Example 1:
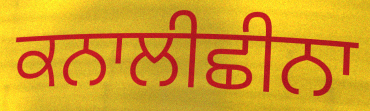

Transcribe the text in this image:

ਕਨਾਲੀਛੀਨਾ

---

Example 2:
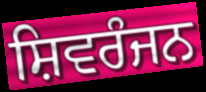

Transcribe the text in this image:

ਸ਼ਿਵਰੰਜਨ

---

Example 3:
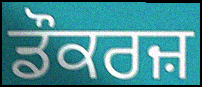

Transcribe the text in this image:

ਡੌਕਰਜ਼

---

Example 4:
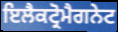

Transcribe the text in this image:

ਇਲੈਕਟ੍ਰੋਮੈਗਨੇਟ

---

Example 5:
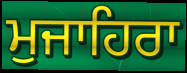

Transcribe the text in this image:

ਮੁਜਾਹਿਰਾ